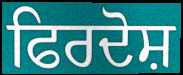
ਫਿਰਦੋਸ਼